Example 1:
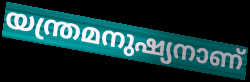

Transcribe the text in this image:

യന്ത്രമനുഷ്യനാണ്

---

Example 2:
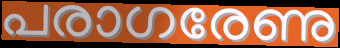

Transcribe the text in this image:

പരാഗരേണു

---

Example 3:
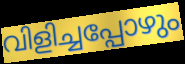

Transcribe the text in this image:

വിളിച്ചപ്പോഴും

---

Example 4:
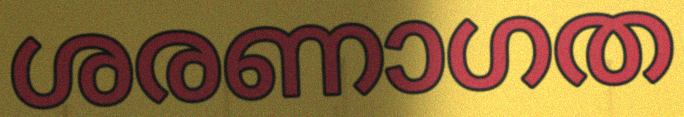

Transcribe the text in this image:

ശരണാഗത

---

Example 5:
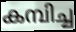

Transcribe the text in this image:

കമ്പിച്ച